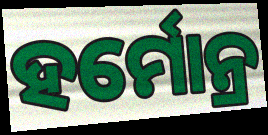
ହର୍ମୋନ୍ର